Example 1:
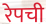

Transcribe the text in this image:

रेपची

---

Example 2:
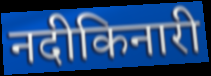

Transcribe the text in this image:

नदीकिनारी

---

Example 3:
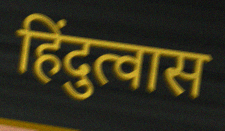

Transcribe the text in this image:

हिंदुत्वास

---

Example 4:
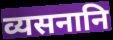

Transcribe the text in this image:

व्यसनानि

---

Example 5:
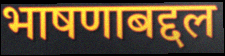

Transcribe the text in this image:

भाषणाबद्दल